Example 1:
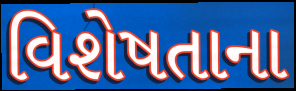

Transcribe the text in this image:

વિશેષતાના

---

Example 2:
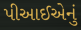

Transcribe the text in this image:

પીઆઈએનું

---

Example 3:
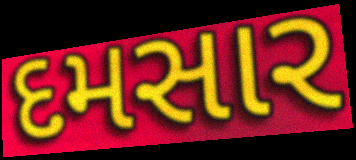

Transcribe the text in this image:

દમસાર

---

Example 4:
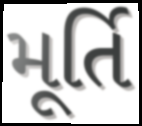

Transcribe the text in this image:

મૂર્તિ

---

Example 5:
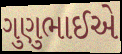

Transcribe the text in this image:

ગુણુભાઈએ